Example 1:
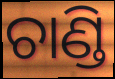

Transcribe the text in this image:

ଚାଣ୍ଡି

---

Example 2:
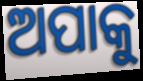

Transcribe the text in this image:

ଅପାକୁ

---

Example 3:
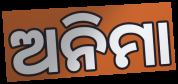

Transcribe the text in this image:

ଅନିମା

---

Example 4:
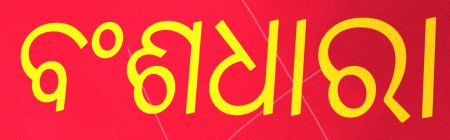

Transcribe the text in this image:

ବଂଶଧାରା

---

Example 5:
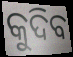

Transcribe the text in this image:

କୁଦିବ